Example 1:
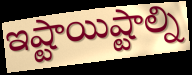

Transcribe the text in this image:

ఇష్టాయిష్టాల్ని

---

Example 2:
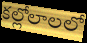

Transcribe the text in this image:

కల్లోలాలలో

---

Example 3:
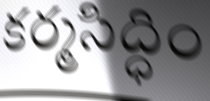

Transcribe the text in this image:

కర్మసిద్ధిం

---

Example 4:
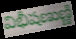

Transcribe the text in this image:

విభీషణుణ్ణి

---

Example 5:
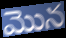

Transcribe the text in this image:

మొన